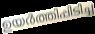
ഉയർത്തിപ്പിടിച്ച